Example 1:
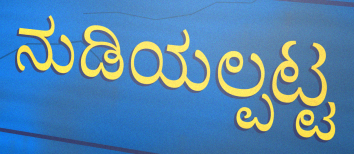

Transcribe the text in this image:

ನುಡಿಯಲ್ಪಟ್ಟ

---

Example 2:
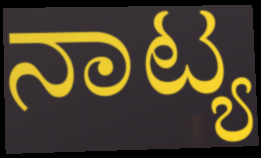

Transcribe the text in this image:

ನಾಟ್ಯ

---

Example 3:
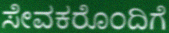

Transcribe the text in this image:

ಸೇವಕರೊಂದಿಗೆ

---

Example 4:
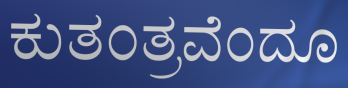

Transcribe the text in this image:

ಕುತಂತ್ರವೆಂದೂ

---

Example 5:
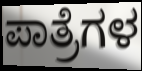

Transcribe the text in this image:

ಪಾತ್ರೆಗಳ